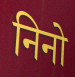
निनो